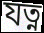
যত্ন